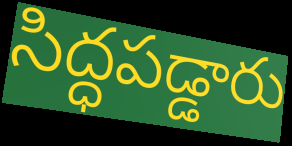
సిద్ధపడ్డారు